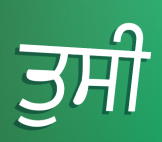
ਤੁਸੀ